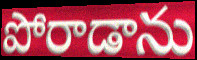
పోరాడాను